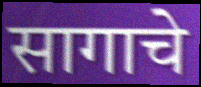
सागाचे